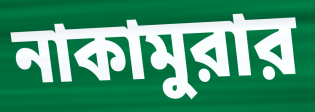
নাকামুরার